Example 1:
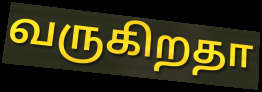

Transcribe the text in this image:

வருகிறதா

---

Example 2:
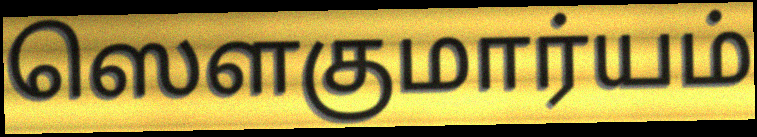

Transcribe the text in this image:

ஸௌகுமார்யம்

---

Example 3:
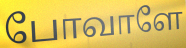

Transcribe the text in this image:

போவாளே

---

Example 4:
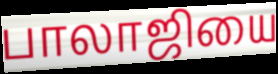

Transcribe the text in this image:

பாலாஜியை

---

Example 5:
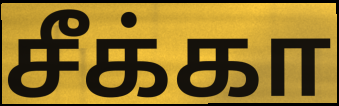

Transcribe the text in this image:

சீக்கா